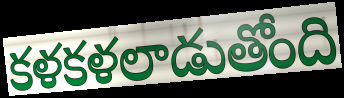
కళకళలాడుతోంది